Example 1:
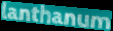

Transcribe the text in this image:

lanthanum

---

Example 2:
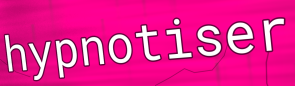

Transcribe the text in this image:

hypnotiser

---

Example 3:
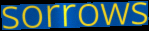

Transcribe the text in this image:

sorrows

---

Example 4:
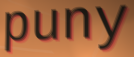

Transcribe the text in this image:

puny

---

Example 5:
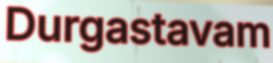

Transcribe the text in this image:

Durgastavam